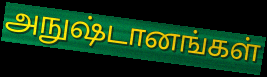
அநுஷ்டானங்கள்